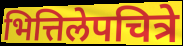
भित्तिलेपचित्रे